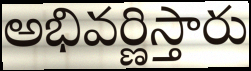
అభివర్ణిస్తారు